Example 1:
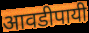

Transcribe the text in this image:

आवडीपायी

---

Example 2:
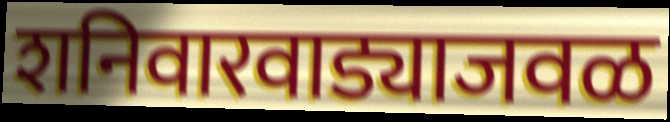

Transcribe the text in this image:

शनिवारवाड्याजवळ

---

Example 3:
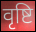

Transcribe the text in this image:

वृष्टि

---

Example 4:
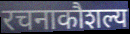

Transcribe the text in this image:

रचनाकौशल्य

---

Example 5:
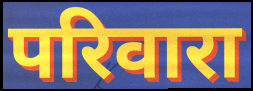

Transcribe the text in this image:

परिवारा